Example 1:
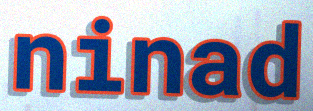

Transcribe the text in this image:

ninad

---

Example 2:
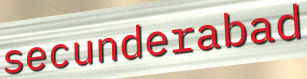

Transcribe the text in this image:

secunderabad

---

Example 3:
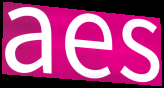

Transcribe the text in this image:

aes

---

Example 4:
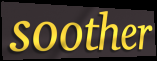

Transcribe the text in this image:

soother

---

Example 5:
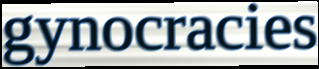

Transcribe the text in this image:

gynocracies